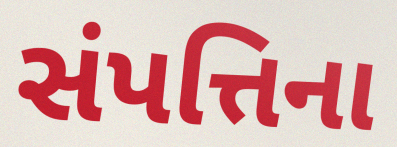
સંપત્તિના